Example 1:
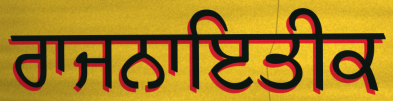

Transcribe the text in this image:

ਰਾਜਨਾਇਤੀਕ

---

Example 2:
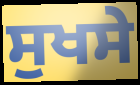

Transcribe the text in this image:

ਸੁਖਸੇ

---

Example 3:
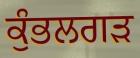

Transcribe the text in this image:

ਕੁੰਭਲਗੜ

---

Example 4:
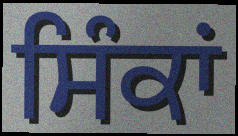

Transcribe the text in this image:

ਸਿੰਕਾਂ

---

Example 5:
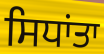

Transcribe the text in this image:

ਸਿਧਾਂਤਾ